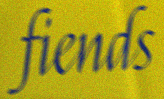
fiends